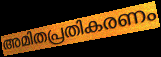
അമിതപ്രതികരണം